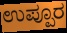
ಉಪ್ಪೂರ